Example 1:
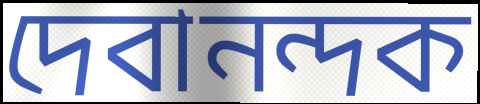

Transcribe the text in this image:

দেবানন্দক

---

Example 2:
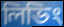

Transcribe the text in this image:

লিভিং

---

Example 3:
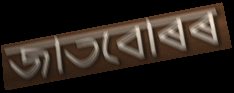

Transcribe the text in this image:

জাতবোৰৰ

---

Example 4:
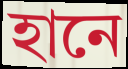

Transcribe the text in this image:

হানে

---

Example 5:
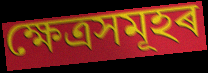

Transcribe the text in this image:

ক্ষেত্ৰসমূহৰ